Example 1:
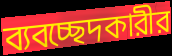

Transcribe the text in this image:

ব্যবচ্ছেদকারীর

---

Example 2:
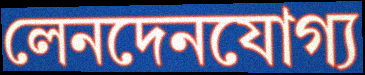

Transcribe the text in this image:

লেনদেনযোগ্য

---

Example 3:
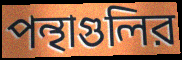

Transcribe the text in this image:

পন্থাগুলির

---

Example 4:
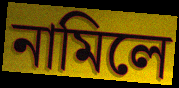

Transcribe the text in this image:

নামিলে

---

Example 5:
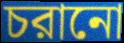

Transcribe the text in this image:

চরানো